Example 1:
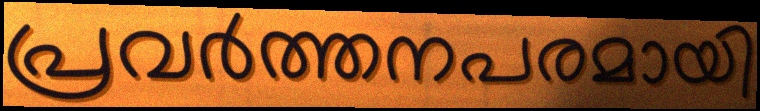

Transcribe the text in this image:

പ്രവർത്തനപരമായി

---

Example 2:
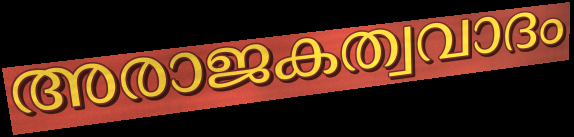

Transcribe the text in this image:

അരാജകത്വവാദം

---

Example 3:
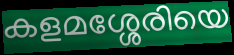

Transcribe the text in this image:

കളമശ്ശേരിയെ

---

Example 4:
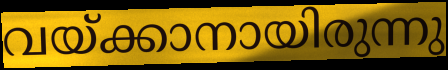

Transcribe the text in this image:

വയ്ക്കാനായിരുന്നു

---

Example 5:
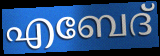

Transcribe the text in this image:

എബേദ്